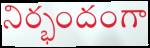
నిర్భందంగా